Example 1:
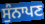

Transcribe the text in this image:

ਸੁੰਨਾਪਣ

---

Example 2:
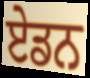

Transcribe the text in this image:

ਏਡਨ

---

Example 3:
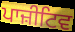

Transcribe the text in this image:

ਪਾਜ਼ੀਟਿਵ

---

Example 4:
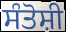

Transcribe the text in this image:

ਸੰਤੋਸ਼ੀ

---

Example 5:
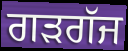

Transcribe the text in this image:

ਗਡ਼ਗੱਜ